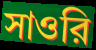
সাওরি